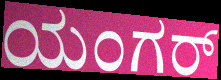
ಯಂಗರ್